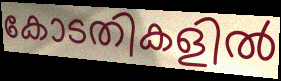
കോടതികളിൽ